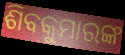
ଶିବକୁମାରଙ୍କ